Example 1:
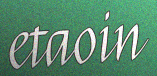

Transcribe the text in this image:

etaoin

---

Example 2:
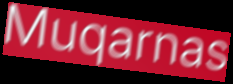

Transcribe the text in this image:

Muqarnas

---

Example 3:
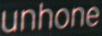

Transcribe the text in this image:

unhone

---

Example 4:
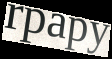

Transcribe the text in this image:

rpapy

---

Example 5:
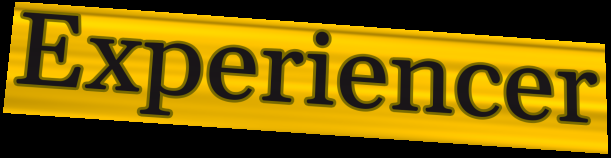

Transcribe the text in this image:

Experiencer